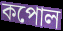
কপোল